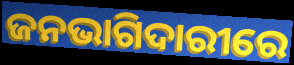
ଜନଭାଗିଦାରୀରେ